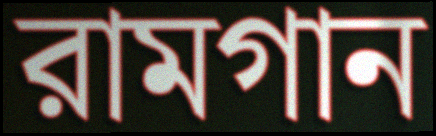
রামগান